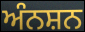
ਅੰਨਸ਼ਨ